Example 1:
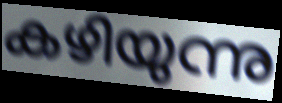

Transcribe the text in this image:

കഴിയുന്നു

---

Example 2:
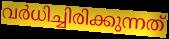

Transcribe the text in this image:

വർധിച്ചിരിക്കുന്നത്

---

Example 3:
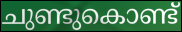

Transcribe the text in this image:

ചുണ്ടുകൊണ്ട്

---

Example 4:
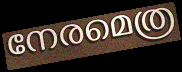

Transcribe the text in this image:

നേരമെത്ര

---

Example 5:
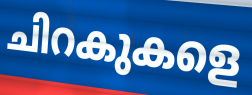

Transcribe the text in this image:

ചിറകുകളെ